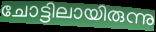
ചോട്ടിലായിരുന്നു